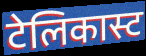
टेलिकास्ट